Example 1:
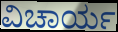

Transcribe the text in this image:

ವಿಚಾರ್ಯ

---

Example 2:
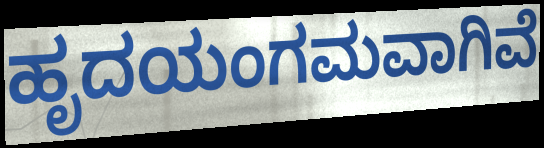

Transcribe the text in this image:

ಹೃದಯಂಗಮವಾಗಿವೆ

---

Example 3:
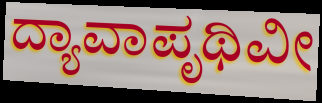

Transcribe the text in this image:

ದ್ಯಾವಾಪೃಥಿವೀ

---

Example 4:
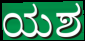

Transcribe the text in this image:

ಯಶ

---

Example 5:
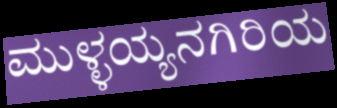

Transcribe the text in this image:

ಮುಳ್ಳಯ್ಯನಗಿರಿಯ